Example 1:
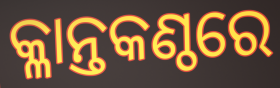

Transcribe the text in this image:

କ୍ଳାନ୍ତକଣ୍ଠରେ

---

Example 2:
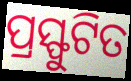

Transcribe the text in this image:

ପ୍ରସ୍ଫୁଟିତ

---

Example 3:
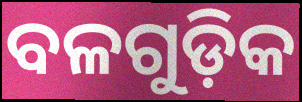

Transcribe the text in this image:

ବଳଗୁଡ଼ିକ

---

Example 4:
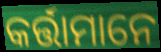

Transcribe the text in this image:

କର୍ତ୍ତାମାନେ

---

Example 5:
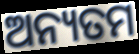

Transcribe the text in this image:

ଅନ୍ୟତମ